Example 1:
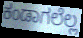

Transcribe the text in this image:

ಕಂಡಾಗಲೆಲ್ಲ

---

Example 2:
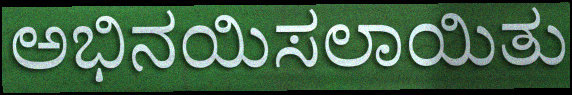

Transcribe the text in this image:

ಅಭಿನಯಿಸಲಾಯಿತು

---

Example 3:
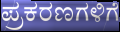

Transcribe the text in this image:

ಪ್ರಕರಣಗಳಿಗೆ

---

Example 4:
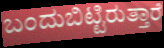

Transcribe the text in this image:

ಬಂದುಬಿಟ್ಟಿರುತ್ತಾರೆ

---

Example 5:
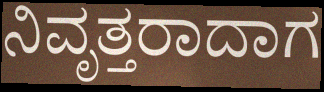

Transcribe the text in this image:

ನಿವೃತ್ತರಾದಾಗ